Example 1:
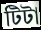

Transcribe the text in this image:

টিটা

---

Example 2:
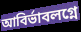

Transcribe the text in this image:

আবির্ভাবলগ্নে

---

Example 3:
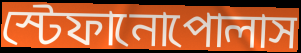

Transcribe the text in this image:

স্টেফানোপোলাস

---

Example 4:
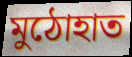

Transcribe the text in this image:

মুঠোহাত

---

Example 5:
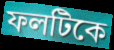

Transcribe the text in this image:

ফলটিকে